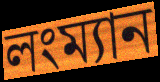
লংম্যান